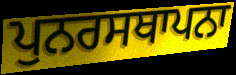
ਪੁਨਰਸਥਾਪਨਾ